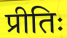
प्रीतिः